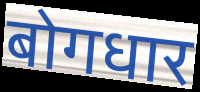
बोगधार